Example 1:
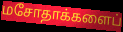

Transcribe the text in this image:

மசோதாக்களைப்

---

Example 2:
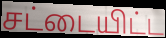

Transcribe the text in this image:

சட்டையிட்ட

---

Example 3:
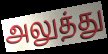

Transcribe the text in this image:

அலுத்து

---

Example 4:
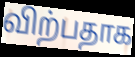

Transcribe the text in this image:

விற்பதாக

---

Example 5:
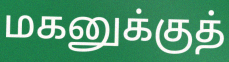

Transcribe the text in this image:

மகனுக்குத்